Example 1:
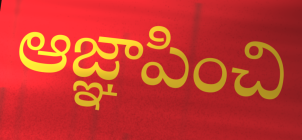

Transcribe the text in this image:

ఆజ్ఞాపించి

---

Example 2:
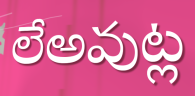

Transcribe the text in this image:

లేఅవుట్ల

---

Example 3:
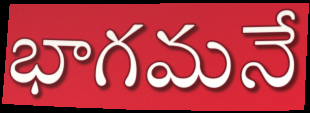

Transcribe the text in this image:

భాగమనే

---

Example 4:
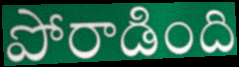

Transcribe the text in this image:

పోరాడింది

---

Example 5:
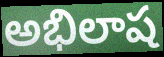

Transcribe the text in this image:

అభిలాష